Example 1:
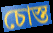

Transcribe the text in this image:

চোস্ত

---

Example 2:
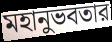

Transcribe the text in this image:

মহানুভবতার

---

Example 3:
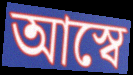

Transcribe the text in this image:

আস্বে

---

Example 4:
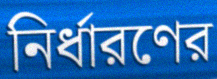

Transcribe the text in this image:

নির্ধারণের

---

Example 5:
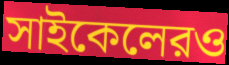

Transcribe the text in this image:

সাইকেলেরও